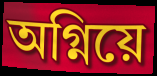
অগ্নিয়ে